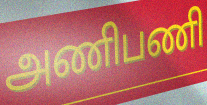
அணிபணி